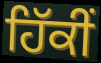
ਹਿੱਕੀਂ